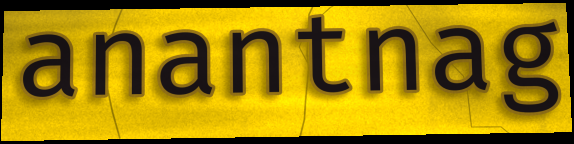
anantnag